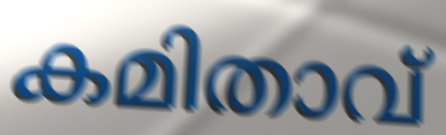
കമിതാവ്